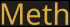
Meth